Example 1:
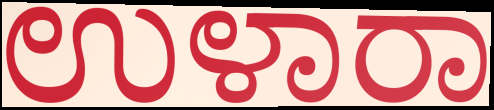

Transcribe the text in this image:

ಉಳಾರಾ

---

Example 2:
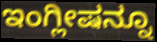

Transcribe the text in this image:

ಇಂಗ್ಲೀಷನ್ನೂ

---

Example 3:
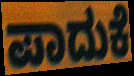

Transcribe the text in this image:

ಪಾದುಕೆ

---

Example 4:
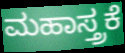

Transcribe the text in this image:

ಮಹಾಸ್ತ್ರಕೆ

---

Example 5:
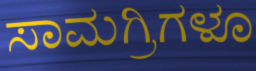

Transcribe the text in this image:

ಸಾಮಗ್ರಿಗಳೂ